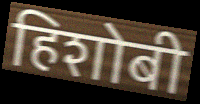
हिशोबी